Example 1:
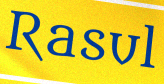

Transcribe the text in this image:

Rasul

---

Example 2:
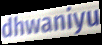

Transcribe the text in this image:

dhwaniyu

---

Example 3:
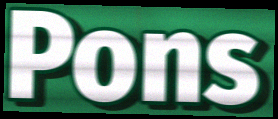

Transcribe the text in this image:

Pons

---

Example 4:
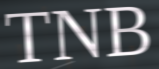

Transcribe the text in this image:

TNB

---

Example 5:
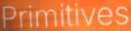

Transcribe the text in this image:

Primitives